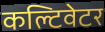
कल्टिवेटर